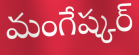
మంగేష్కర్